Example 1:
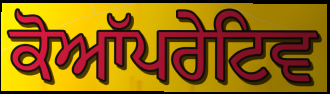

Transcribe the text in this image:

ਕੋਆੱਪਰੇਟਿਵ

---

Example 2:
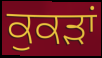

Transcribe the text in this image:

ਕੁਕੜਾਂ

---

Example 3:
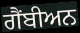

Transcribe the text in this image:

ਗੈਂਬੀਅਨ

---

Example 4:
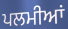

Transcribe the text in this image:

ਪਲਮੀਆਂ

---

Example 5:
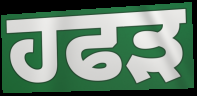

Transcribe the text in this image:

ਹਫੜ